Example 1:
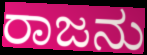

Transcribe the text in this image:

ರಾಜನು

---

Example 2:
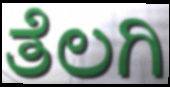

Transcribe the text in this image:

ತೆಲಗಿ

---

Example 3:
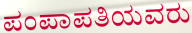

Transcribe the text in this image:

ಪಂಪಾಪತಿಯವರು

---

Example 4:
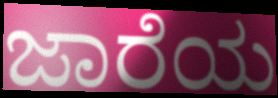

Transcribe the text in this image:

ಜಾರೆಯ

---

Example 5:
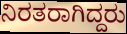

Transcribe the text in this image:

ನಿರತರಾಗಿದ್ದರು